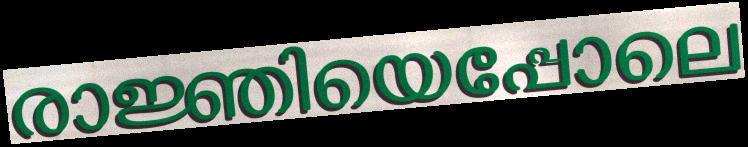
രാജ്ഞിയെപ്പോലെ